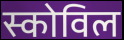
स्कोविल